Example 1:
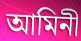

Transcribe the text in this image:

আমিনী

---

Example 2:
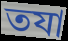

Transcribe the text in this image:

তযা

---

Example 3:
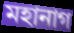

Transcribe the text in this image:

মহানাগ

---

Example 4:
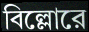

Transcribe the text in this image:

বিল্লোরে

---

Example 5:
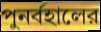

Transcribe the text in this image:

পুনর্বহালের